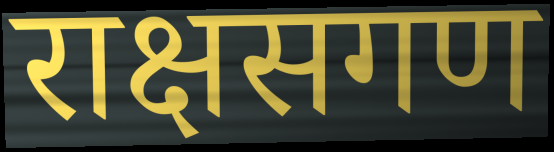
राक्षसगण